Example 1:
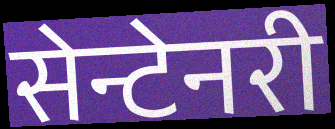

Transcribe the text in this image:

सेन्टेनरी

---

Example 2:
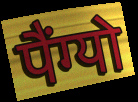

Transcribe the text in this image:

पैंग्यो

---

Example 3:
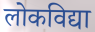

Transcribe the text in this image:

लोकविद्या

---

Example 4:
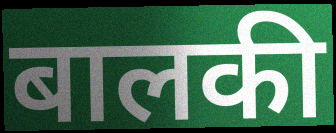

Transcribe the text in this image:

बालकी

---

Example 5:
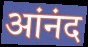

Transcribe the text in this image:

आंनंद